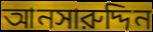
আনসারুদ্দিন